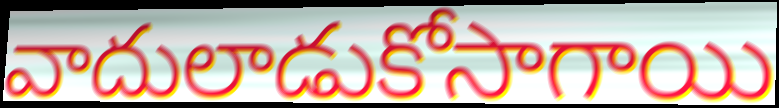
వాదులాడుకోసాగాయి